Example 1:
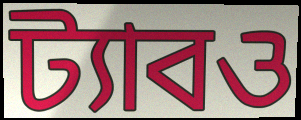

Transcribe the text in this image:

ট্যাবও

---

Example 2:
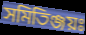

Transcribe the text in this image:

সমিতিঞ্জয়ঃ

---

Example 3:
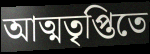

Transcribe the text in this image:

আত্মতৃপ্তিতে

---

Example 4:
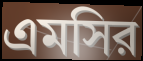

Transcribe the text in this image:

এমসির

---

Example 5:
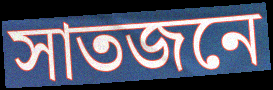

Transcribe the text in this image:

সাতজনে